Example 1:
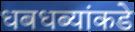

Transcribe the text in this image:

धबधब्यांकडे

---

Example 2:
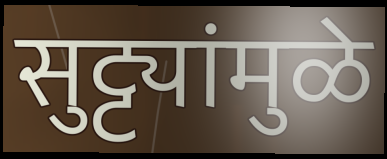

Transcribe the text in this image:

सुट्ट्यांमुळे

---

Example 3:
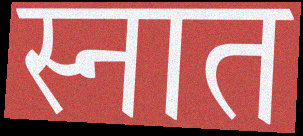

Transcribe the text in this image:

स्नात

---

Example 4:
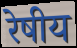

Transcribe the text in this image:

रेषीय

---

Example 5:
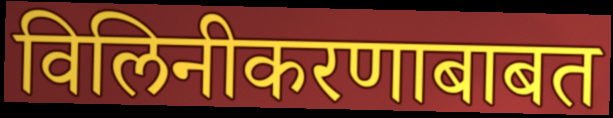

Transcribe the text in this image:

विलिनीकरणाबाबत